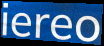
iereo